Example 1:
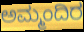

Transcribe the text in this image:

ಅಮ್ಮಂದಿರ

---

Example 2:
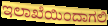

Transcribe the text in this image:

ಇಲಾಖೆಯಿಂದಾಗಲಿ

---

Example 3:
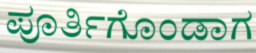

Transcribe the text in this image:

ಪೂರ್ತಿಗೊಂಡಾಗ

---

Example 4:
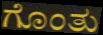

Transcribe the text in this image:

ಗೊಂತು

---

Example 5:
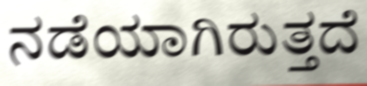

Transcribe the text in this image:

ನಡೆಯಾಗಿರುತ್ತದೆ